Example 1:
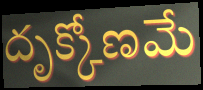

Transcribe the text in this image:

దృక్కోణమే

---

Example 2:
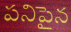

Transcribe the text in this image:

పనిపైన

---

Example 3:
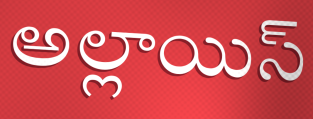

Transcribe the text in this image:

అల్లాయిస్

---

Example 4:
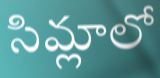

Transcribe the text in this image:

సిమ్లాలో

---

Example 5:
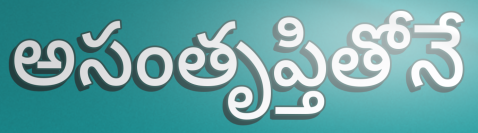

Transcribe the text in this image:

అసంతృప్తితోనే